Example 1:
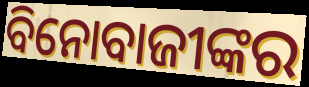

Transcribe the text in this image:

ବିନୋବାଜୀଙ୍କର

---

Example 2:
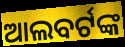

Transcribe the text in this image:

ଆଲବର୍ଟଙ୍କ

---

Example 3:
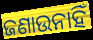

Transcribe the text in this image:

ଜଣାଉନାହିଁ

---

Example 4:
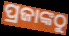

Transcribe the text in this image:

ପ୍ରଜାଙ୍କଠୁ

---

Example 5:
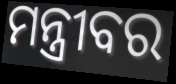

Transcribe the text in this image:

ମନ୍ତ୍ରୀବର